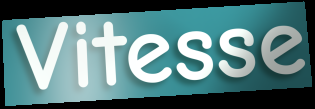
Vitesse